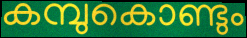
കമ്പുകൊണ്ടും